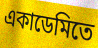
একাডেমিতে